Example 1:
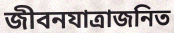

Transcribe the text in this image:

জীবনযাত্রাজনিত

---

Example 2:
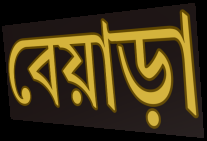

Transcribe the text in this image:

বেয়াড়া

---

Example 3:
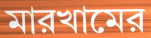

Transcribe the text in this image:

মারখামের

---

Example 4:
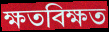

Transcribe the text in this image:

ক্ষতবিক্ষত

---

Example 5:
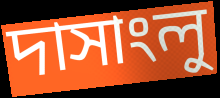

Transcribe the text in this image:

দাসাংলু